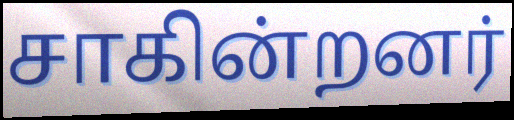
சாகின்றனர்